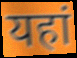
यहां